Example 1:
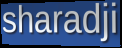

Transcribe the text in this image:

sharadji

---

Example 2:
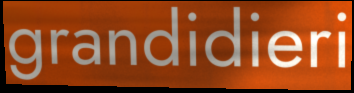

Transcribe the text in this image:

grandidieri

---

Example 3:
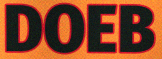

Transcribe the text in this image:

DOEB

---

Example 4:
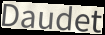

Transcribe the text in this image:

Daudet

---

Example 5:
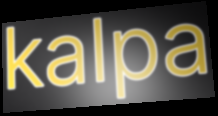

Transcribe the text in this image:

kalpa